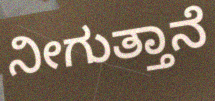
ನೀಗುತ್ತಾನೆ